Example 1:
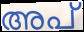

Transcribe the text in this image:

അപ്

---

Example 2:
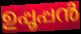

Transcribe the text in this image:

ഉപ്പൂപ്പൻ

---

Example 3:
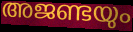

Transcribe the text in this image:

അജണ്ടയും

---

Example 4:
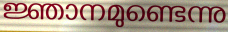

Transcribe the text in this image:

ജ്ഞാനമുണ്ടെന്നു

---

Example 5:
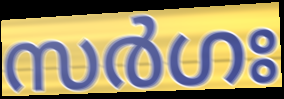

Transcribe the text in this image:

സർഗഃ